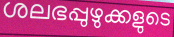
ശലഭപ്പുഴുക്കളുടെ